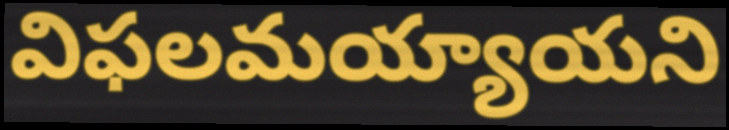
విఫలమయ్యాయని